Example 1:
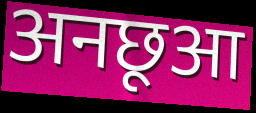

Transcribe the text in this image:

अनछूआ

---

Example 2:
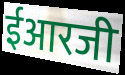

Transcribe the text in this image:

ईआरजी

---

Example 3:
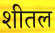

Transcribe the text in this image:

शीतल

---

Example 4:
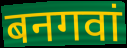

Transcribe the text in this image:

बनगवां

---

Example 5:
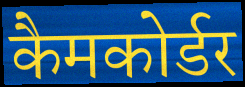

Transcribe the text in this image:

कैमकोर्डर